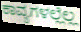
ಕಾವ್ಯಗಳಲ್ಲೆಲ್ಲ